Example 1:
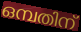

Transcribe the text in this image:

ഒമ്പതിന്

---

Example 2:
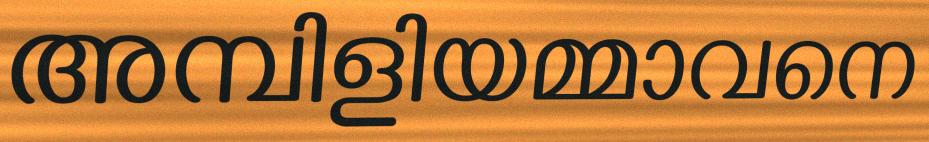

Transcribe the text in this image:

അമ്പിളിയമ്മാവനെ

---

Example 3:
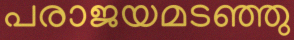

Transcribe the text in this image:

പരാജയമടഞ്ഞു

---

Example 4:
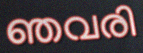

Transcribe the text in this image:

ഞവരി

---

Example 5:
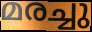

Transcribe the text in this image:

മരച്ചു